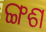
ଙ୍ଗଶ